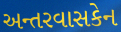
અન્તરવાસકેન